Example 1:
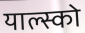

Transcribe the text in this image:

याल्स्को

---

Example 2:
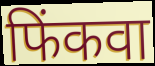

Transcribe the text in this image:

फिंकवा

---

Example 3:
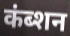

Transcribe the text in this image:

कंब्शन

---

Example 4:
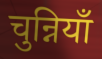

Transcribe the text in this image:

चुन्नियाँ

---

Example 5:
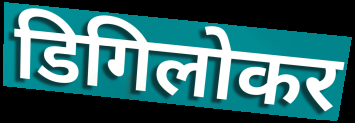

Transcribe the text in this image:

डिगिलोकर